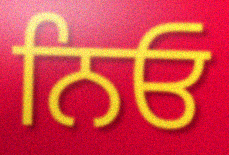
ਨਿਓ